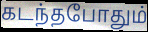
கடந்தபோதும்